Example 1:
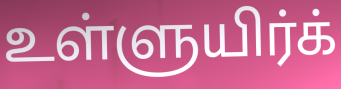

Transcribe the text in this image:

உள்ளுயிர்க்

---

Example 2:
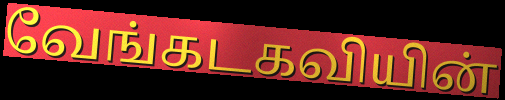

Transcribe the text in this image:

வேங்கடகவியின்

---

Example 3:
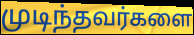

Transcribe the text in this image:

முடிந்தவர்களை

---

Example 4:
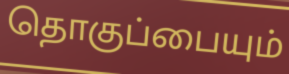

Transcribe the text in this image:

தொகுப்பையும்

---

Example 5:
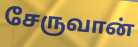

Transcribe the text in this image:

சேருவான்